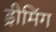
ड्रीमिंग